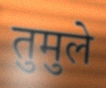
तुमुले